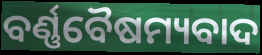
ବର୍ଣ୍ଣବୈଷମ୍ୟବାଦ